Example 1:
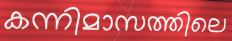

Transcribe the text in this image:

കന്നിമാസത്തിലെ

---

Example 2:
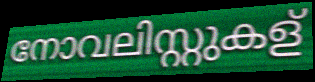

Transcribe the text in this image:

നോവലിസ്റ്റുകള്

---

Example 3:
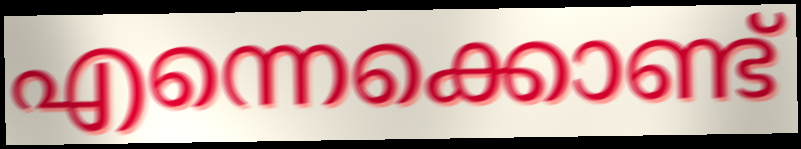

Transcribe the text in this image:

എന്നെക്കൊണ്ട്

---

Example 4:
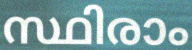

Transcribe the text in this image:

സ്ഥിരാം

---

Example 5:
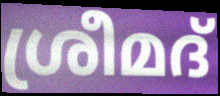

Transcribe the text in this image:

ശ്രീമദ്